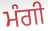
ਮੰਗੀ